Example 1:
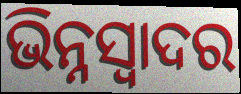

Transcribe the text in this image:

ଭିନ୍ନସ୍ବାଦର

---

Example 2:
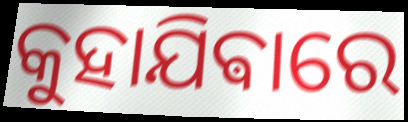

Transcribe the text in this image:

କୁହାଯିଵାରେ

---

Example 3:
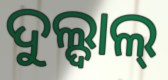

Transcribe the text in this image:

ଦୁଲ୍ଦାଲ୍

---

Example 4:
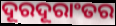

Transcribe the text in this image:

ଦୂରଦୂରାଂତର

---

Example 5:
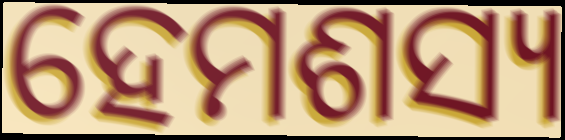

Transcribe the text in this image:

ହେମଶସ୍ୟ